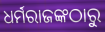
ଧର୍ମରାଜଙ୍କଠାରୁ